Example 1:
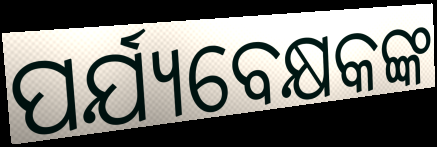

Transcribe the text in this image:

ପର୍ଯ୍ୟବେକ୍ଷକଙ୍କ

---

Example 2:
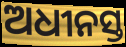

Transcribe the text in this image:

ଅଧୀନସ୍ତ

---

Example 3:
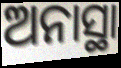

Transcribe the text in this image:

ଅନାସ୍ଥା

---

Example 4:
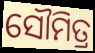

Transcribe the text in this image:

ସୌମିତ୍ର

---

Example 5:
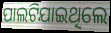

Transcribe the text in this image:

ପାଲଟିଯାଇଥିଲେ